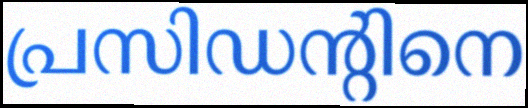
പ്രസിഡന്റിനെ